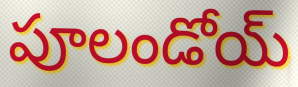
పూలండోయ్